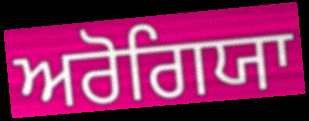
ਅਰੋਗਿਯਾ